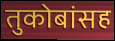
तुकोबांसह